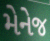
મેનેજ